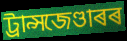
ট্ৰান্সজেণ্ডাৰৰ